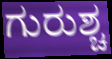
ಗುರುಶ್ಚ